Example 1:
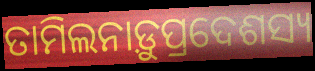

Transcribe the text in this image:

ତାମିଲନାଡ଼ୁପ୍ରଦେଶସ୍ୟ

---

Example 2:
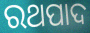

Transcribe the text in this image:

ରଥପାଦ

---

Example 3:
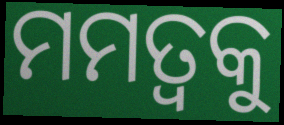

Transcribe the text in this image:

ମମତ୍ୱକୁ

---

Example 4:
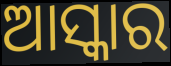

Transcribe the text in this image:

ଆସ୍କାର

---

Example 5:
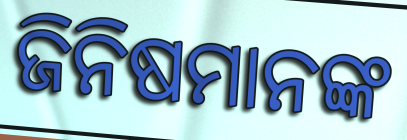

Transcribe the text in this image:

ଜିନିଷମାନଙ୍କ